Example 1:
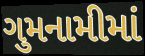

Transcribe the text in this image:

ગુમનામીમાં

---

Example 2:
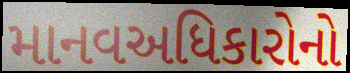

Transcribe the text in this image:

માનવઅધિકારોનો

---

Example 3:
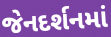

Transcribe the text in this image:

જેનદર્શનમાં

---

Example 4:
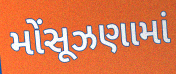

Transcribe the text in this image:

મોંસૂઝણામાં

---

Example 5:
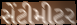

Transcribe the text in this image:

સેંટીમીટર